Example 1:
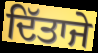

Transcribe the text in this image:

ਦਿੱਤਾਜੇ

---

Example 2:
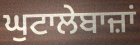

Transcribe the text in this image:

ਘੁਟਾਲੇਬਾਜ਼ਾਂ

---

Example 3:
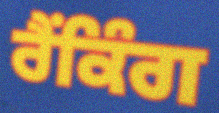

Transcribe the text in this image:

ਰੈੰਕਿੰਗ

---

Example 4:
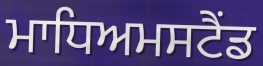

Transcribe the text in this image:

ਮਾਧਿਅਮਸਟੈਂਡ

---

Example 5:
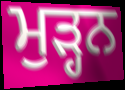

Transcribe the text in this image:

ਮੁੜ੍ਹਨ